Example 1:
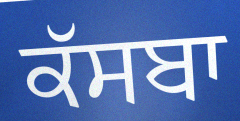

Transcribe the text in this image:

ਕੱਸਬਾ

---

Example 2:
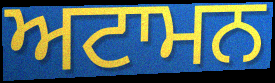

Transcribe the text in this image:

ਅਟਾਮਨ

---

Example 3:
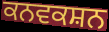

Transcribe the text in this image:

ਕਨਵਕਸ਼ਨ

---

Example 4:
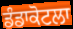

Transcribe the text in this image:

ਡੰਡਾਕੋਟਲਾ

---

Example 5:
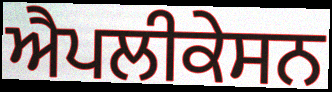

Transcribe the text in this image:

ਐਪਲੀਕੇਸਨ